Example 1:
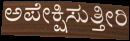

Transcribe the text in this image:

ಅಪೇಕ್ಷಿಸುತ್ತೀರಿ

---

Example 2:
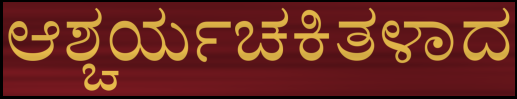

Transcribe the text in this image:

ಆಶ್ಚರ್ಯಚಕಿತಳಾದ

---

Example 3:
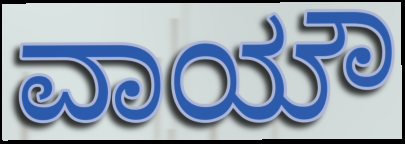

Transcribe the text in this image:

ವಾಯೌ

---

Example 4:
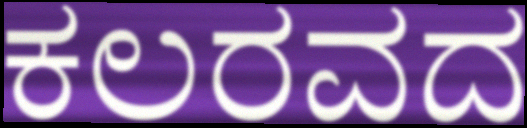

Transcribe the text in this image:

ಕಲರವದ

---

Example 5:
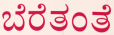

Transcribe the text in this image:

ಬೆರೆತಂತೆ